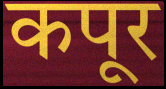
कपूर